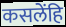
कसलेंहि